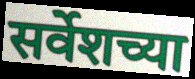
सर्वेशच्या